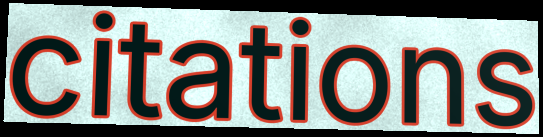
citations